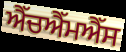
ਐੱਚਐੱਮਐੱਸ